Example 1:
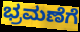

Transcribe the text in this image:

ಭ್ರಮಣೆಗೆ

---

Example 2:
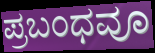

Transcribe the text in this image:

ಪ್ರಬಂಧವೂ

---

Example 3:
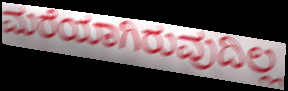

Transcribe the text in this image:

ಮರೆಯಾಗಿರುವುದಿಲ್ಲ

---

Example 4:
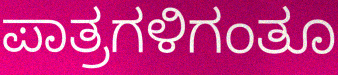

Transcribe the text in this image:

ಪಾತ್ರಗಳಿಗಂತೂ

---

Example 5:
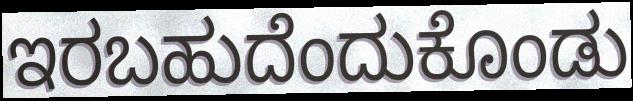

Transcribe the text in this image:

ಇರಬಹುದೆಂದುಕೊಂಡು